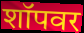
शॉपवर